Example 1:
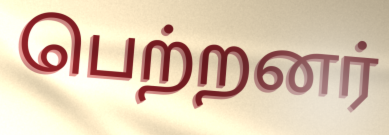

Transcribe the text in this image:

பெற்றனர்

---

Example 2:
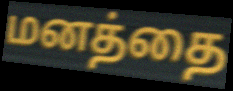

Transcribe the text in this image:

மனத்தை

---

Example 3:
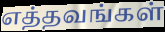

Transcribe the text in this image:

எத்தவங்கள்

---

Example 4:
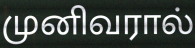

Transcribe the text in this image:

முனிவரால்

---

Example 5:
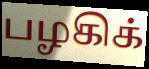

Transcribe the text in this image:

பழகிக்